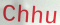
Chhu